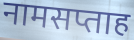
नामसप्ताह